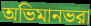
অভিমানভরা